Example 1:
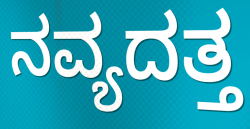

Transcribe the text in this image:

ನವ್ಯದತ್ತ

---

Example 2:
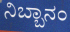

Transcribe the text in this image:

ನಿಬ್ಬಾನಂ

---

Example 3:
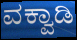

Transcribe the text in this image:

ವಕ್ವಾಡಿ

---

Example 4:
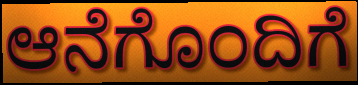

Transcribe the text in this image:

ಆನೆಗೊಂದಿಗೆ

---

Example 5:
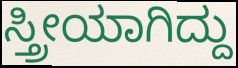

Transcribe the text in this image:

ಸ್ತ್ರೀಯಾಗಿದ್ದು